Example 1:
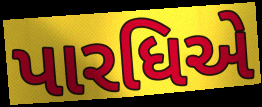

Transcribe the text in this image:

પારધિએ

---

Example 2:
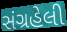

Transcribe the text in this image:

સંગ્રહેલી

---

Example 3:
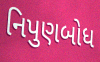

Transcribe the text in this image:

નિપુણબોધ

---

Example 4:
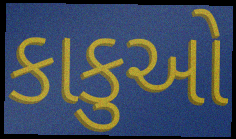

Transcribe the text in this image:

કાકુઓ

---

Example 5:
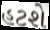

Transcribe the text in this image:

હટશે